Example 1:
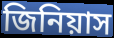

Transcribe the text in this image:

জিনিয়াস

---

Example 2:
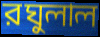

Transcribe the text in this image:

রঘুলাল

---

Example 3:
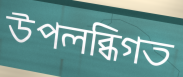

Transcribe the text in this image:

উপলব্ধিগত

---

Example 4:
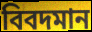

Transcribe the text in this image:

বিবদমান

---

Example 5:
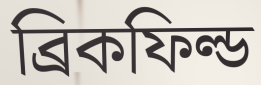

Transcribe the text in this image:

ব্রিকফিল্ড